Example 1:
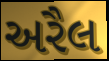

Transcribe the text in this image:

અરૈલ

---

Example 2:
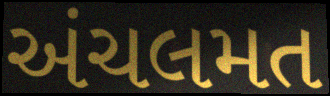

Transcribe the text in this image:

અંચલમત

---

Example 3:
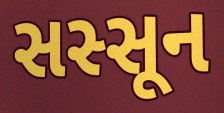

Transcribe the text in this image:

સસ્સૂન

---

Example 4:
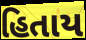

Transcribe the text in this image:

હિતાય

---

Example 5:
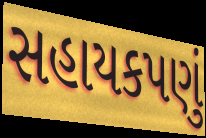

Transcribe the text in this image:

સહાયકપણું